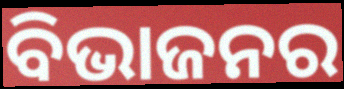
ବିଭାଜନର